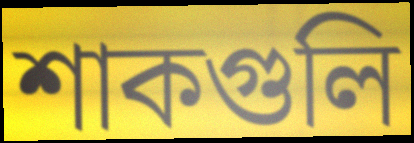
শাকগুলি